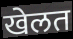
खेलत